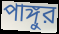
পাঙ্গুর